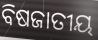
ବିଷଜାତୀୟ